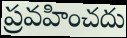
ప్రవహించదు